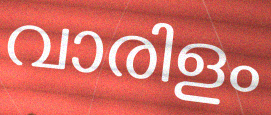
വാരിളം